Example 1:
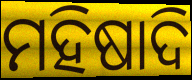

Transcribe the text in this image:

ମହିଷାଦି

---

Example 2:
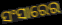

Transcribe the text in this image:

ସଂସାରେର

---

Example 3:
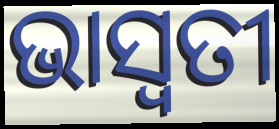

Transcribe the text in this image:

ଭାସ୍ଵତୀ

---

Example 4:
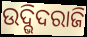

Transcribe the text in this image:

ଉଦ୍ଭିଦରାଜି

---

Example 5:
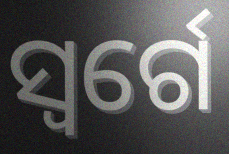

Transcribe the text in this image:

ସ୍ୱର୍ଗେ